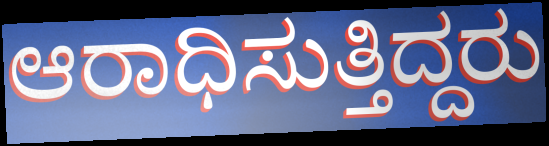
ಆರಾಧಿಸುತ್ತಿದ್ದರು